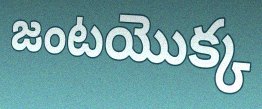
జంటయొక్క